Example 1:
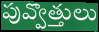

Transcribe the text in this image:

పువ్వొత్తులు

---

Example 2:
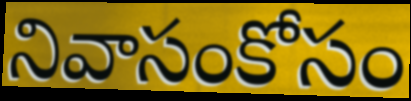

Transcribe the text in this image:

నివాసంకోసం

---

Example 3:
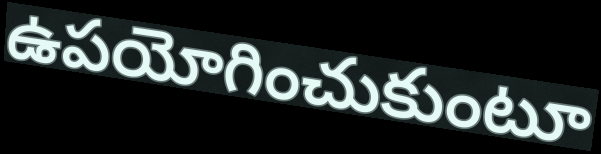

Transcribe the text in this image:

ఉపయోగించుకుంటూ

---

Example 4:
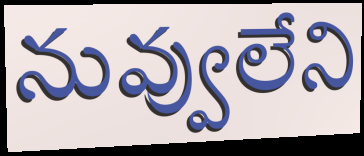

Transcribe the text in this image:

నువ్వులేని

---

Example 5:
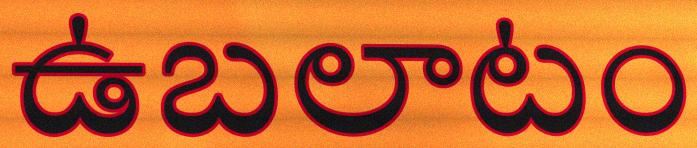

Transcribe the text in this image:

ఉబలాటం